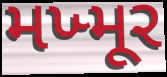
મખ્મૂર